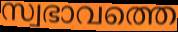
സ്വഭാവത്തെ